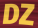
DZ